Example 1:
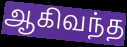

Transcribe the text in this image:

ஆகிவந்த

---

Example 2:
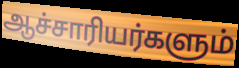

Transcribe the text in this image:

ஆச்சாரியர்களும்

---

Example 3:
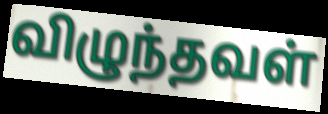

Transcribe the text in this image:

விழுந்தவள்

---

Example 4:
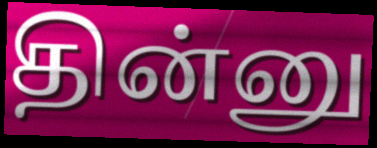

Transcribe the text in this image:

தின்னு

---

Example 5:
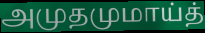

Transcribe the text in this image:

அமுதமுமாய்த்